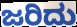
ಜರಿದು